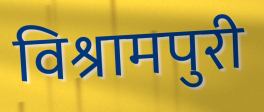
विश्रामपुरी